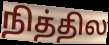
நித்தில